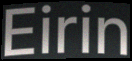
Eirin